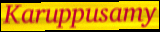
Karuppusamy